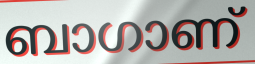
ബാഗാണ്